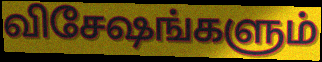
விசேஷங்களும்